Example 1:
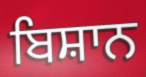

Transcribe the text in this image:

ਬਿਸ਼ਾਨ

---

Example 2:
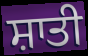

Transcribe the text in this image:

ਸ਼ਾਤੀ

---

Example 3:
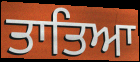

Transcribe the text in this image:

ਤਾਤਿਆ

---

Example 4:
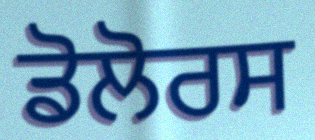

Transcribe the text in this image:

ਡੋਲੋਰਸ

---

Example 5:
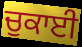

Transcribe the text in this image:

ਚੁਕਾਈ